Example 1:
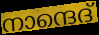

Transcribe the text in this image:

നാന്ദെദ്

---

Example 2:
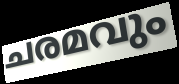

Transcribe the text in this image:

ചരമവും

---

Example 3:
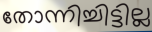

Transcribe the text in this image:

തോന്നിച്ചിട്ടില്ല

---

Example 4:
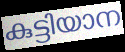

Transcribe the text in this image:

കുട്ടിയാന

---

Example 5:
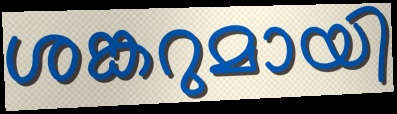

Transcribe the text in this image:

ശങ്കറുമായി